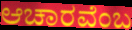
ಆಚಾರವೆಂಬ